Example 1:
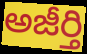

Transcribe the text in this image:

అజీర్తి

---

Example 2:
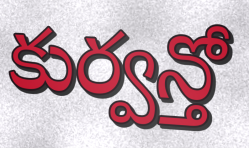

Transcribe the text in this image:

కుర్వన్తో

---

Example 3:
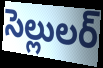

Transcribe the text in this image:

సెల్లులర్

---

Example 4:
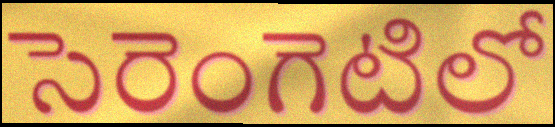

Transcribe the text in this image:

సెరెంగెటిలో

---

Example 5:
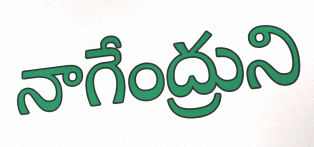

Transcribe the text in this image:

నాగేంద్రుని